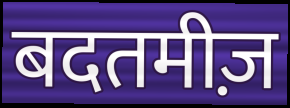
बदतमीज़